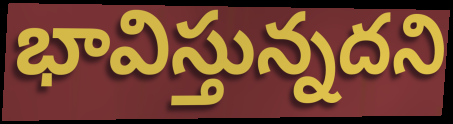
భావిస్తున్నదని